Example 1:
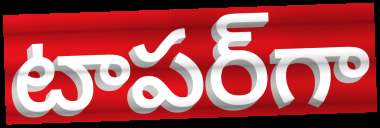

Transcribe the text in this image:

టాపర్‌గా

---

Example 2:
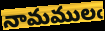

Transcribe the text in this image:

నామములఁ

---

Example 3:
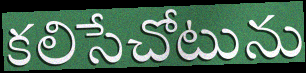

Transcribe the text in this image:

కలిసేచోటును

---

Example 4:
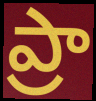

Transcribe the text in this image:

ప్రా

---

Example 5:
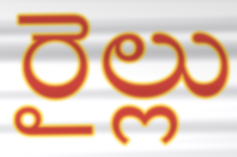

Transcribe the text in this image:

రైల్లు